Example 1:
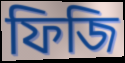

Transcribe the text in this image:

ফিজি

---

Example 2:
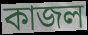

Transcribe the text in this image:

কাজল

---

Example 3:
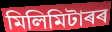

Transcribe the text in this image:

মিলিমিটাৰৰ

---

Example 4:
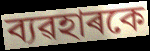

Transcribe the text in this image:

ব্যৱহাৰকে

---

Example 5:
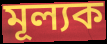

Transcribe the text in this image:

মূল্যক